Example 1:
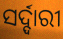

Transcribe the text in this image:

ସର୍ଦ୍ଦାରୀ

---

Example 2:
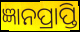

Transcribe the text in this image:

ଜ୍ଞାନପ୍ରାପ୍ତି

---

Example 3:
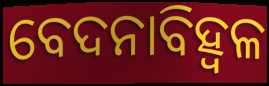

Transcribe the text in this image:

ବେଦନାବିହ୍ୱଳ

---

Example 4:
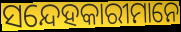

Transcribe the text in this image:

ସନ୍ଦେହକାରୀମାନେ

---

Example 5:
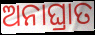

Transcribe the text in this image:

ଅନାଘ୍ରାତ